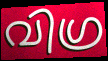
വിഗ്ര